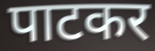
पाटकर